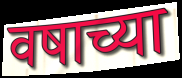
वषाच्या